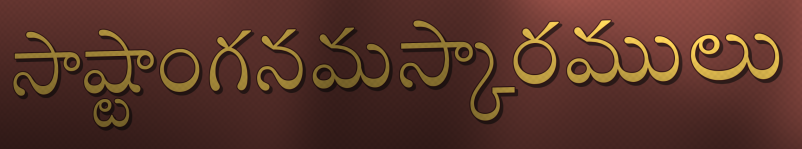
సాష్టాంగనమస్కారములు